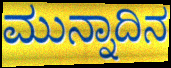
ಮುನ್ನಾದಿನ